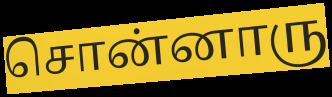
சொன்னாரு